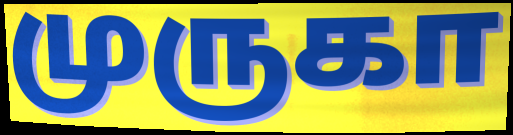
முருகா